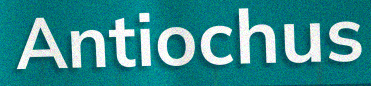
Antiochus